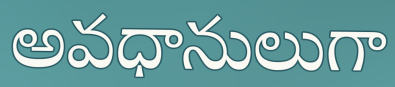
అవధానులుగా